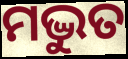
ମଦ୍ଭୁତ